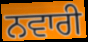
ਨਵਾਰੀ